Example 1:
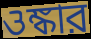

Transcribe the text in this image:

ওঙ্কার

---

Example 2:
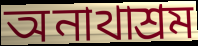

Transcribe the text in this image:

অনাথাশ্রম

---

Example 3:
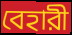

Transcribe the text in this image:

বেহারী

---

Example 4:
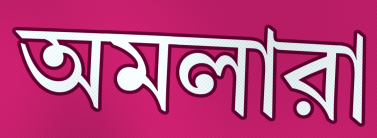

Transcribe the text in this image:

অমলারা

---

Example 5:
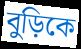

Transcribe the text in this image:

বুড়িকে